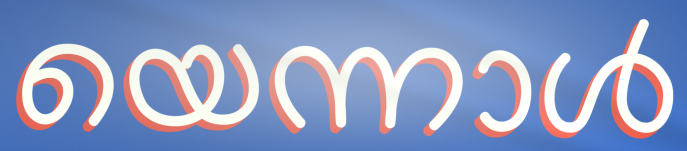
യെന്നാൾ